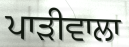
ਪਾੜੀਵਾਲਾ